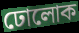
ঢোলোক